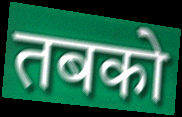
तबको